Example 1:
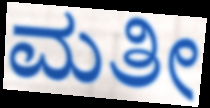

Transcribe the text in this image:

ಮತೀ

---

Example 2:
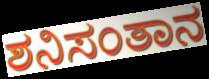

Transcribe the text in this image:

ಶನಿಸಂತಾನ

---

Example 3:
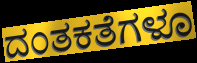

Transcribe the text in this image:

ದಂತಕತೆಗಳೂ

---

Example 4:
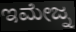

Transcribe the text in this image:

ಇಮೇಜ್ನ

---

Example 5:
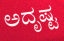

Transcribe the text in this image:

ಅದೃಷ್ಟ